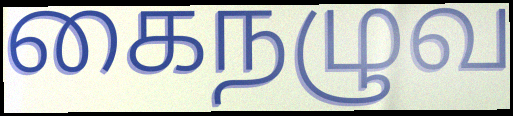
கைநழுவ